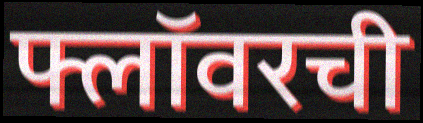
फ्लॉवरची